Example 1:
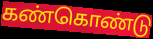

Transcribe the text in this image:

கண்கொண்டு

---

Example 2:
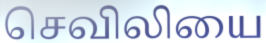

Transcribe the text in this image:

செவிலியை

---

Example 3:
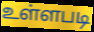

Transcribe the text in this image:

உள்ளபடி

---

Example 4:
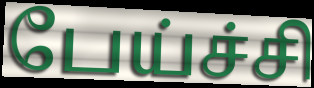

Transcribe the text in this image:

பேய்ச்சி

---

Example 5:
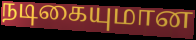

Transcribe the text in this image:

நடிகையுமான